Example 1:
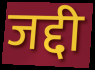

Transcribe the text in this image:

जद्दी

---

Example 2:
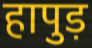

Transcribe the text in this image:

हापुड़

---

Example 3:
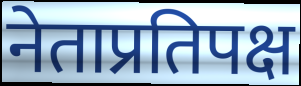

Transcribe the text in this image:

नेताप्रतिपक्ष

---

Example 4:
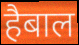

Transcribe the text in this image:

हैबाल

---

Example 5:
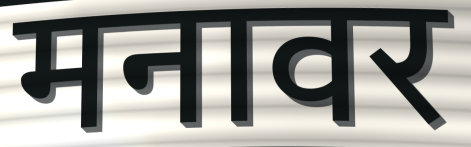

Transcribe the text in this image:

मनावर